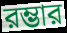
রম্ভার